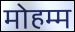
मोहम्म